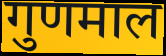
गुणमाल